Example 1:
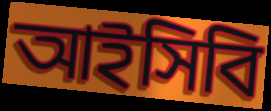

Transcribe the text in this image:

আইসিবি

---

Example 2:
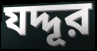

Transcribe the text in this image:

যদ্দূর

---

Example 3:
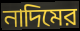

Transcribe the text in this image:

নাদিমের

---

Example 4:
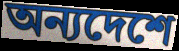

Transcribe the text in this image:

অন্যদেশে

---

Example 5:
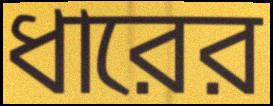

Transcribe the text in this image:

ধারের